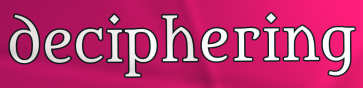
deciphering